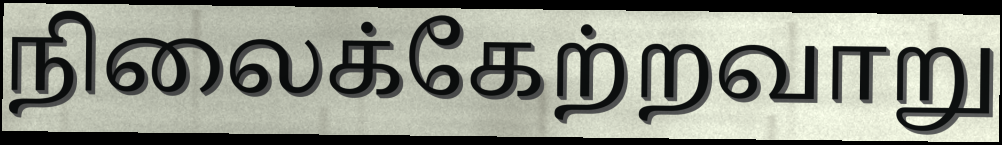
நிலைக்கேற்றவாறு